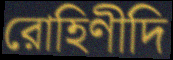
রোহিণীদি